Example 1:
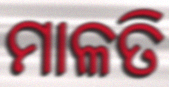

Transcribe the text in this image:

ମାଳତି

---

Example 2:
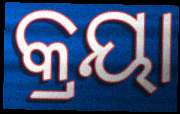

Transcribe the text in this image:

କ୍ରୟା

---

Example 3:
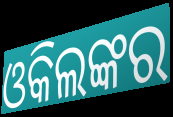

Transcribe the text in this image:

ଓକିଲଙ୍କର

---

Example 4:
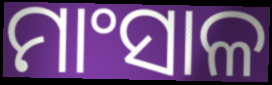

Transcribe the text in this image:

ମାଂସାଳ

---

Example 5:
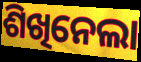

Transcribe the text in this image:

ଶିଖିନେଲା